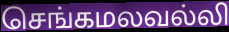
செங்கமலவல்லி